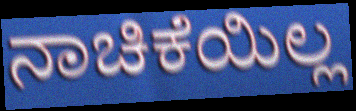
ನಾಚಿಕೆಯಿಲ್ಲ